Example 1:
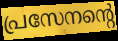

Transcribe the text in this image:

പ്രസേനന്റെ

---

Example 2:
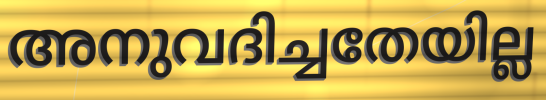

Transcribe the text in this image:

അനുവദിച്ചതേയില്ല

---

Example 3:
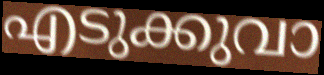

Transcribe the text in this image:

എടുക്കുവാ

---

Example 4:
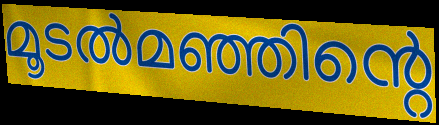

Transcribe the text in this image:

മൂടൽമഞ്ഞിന്റെ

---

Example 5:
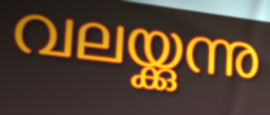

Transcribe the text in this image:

വലയ്ക്കുന്നു